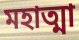
মহাত্মা